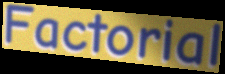
Factorial